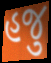
હજુ